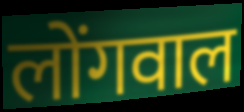
लोंगवाल